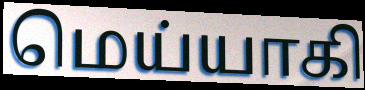
மெய்யாகி